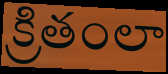
క్రితంలా